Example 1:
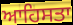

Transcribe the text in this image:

ਆਹਿਸਤਾ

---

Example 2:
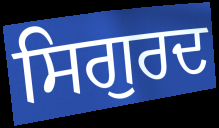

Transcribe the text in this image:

ਸਿਗੁਰਦ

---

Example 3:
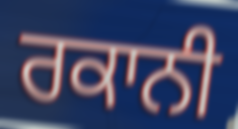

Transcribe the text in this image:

ਰਕਾਨੀ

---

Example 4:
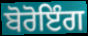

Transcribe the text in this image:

ਬੋਰੋਇੰਗ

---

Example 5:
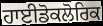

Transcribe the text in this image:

ਹਾਈਡੋਕਲੋਰਿਕ